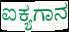
ಐಕ್ಯಗಾನ